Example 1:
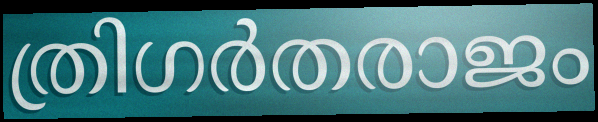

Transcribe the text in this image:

ത്രിഗർതരാജം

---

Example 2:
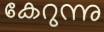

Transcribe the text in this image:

കേറുന്നു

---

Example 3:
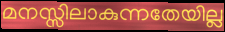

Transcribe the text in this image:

മനസ്സിലാകുന്നതേയില്ല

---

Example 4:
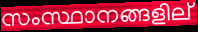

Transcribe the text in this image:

സംസ്ഥാനങ്ങളില്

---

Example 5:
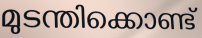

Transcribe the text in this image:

മുടന്തിക്കൊണ്ട്